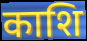
काशि